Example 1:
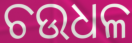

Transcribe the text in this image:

ଚଉଧଳ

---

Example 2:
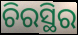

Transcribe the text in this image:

ଚିରସ୍ଥିର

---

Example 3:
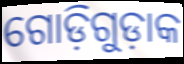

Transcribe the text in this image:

ଗୋଡ଼ିଗୁଡ଼ାକ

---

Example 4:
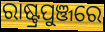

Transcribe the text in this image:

ରାଷ୍ଟ୍ରପୁଞ୍ଜରେ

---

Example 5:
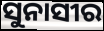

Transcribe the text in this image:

ସୁନାସୀର